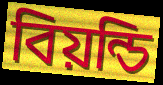
বিয়ন্ডি